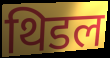
थिडल